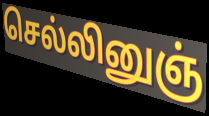
செல்லினுஞ்